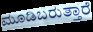
ಮೂಡಿಬರುತ್ತಾರೆ